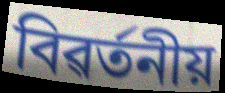
বিৱৰ্তনীয়